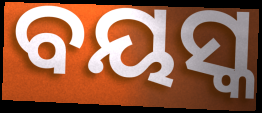
ବୟସ୍କ